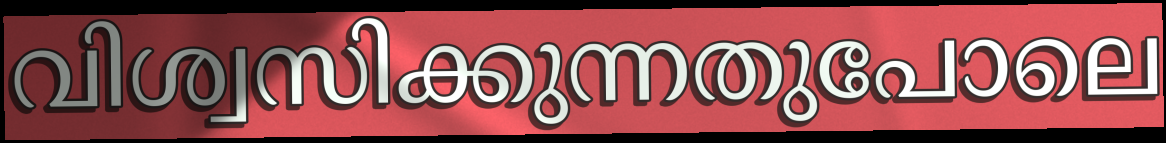
വിശ്വസിക്കുന്നതുപോലെ